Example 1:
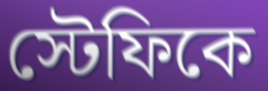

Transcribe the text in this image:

স্টেফিকে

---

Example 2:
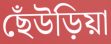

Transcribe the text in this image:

ছেঁউড়িয়া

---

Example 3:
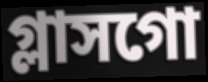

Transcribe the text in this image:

গ্লাসগো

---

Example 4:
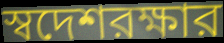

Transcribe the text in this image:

স্বদেশরক্ষার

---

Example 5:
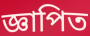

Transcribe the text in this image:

জ্ঞাপিত